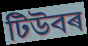
টিউবৰ